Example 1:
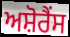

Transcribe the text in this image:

ਅਸ਼ੋਰੈਂਸ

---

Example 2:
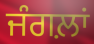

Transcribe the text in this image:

ਜੰਗਲ਼ਾਂ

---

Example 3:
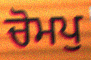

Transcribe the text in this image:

ਚੋਮਪੁ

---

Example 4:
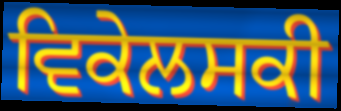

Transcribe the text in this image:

ਵਿਕੇਲਸਕੀ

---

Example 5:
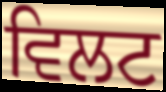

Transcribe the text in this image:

ਵਿਲਟ